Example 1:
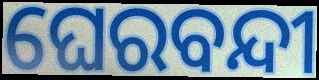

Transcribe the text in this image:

ଘେରବନ୍ଦୀ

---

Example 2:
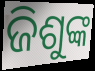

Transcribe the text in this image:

ଜିଶୁଙ୍କ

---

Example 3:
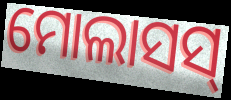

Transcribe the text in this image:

ମୋଲାସସ୍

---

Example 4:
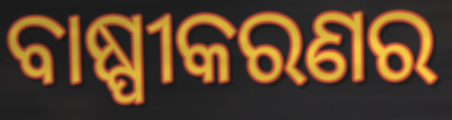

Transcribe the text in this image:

ବାଷ୍ପୀକରଣର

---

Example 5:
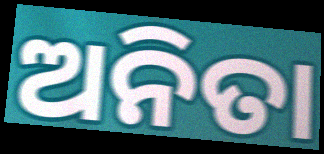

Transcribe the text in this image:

ଅନିତା